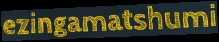
ezingamatshumi